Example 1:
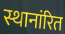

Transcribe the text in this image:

स्थानांरित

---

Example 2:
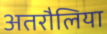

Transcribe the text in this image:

अतरौलिया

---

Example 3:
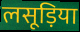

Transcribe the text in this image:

लसूड़िया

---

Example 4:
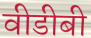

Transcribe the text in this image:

वीडीबी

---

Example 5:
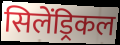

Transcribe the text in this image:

सिलेंड्रिकल